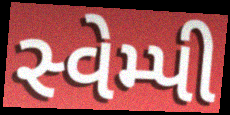
સ્વેમ્પી